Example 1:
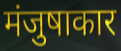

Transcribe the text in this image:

मंजुषाकार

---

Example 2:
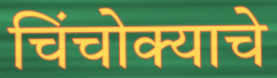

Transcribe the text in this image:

चिंचोक्याचे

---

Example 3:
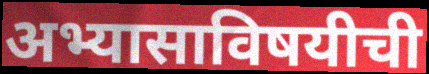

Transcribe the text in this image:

अभ्यासाविषयीची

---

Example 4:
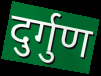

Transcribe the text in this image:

दुर्गुण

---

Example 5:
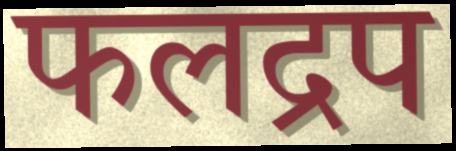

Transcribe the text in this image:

फलद्रप